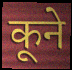
कूने